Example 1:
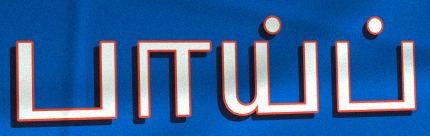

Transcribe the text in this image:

பாய்ப்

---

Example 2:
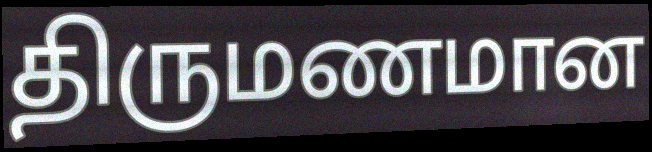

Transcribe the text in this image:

திருமணமான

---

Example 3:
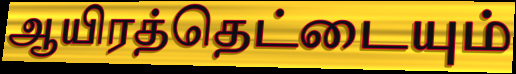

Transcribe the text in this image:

ஆயிரத்தெட்டையும்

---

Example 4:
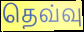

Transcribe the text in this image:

தெவ்வு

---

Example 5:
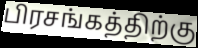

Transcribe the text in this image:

பிரசங்கத்திற்கு